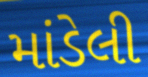
માંડેલી